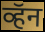
व्हॅन